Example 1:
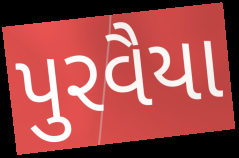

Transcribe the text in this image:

પુરવૈયા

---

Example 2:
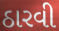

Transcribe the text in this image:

ઠારવી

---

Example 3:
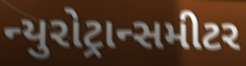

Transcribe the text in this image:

ન્યુરોટ્રાન્સમીટર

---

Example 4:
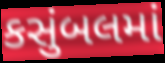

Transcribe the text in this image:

કસુંબલમાં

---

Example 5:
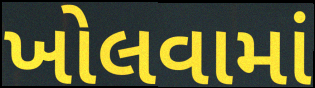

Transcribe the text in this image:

ખોલવામાં